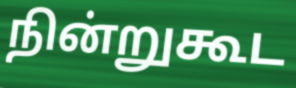
நின்றுகூட